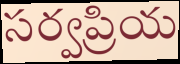
సర్వప్రియ